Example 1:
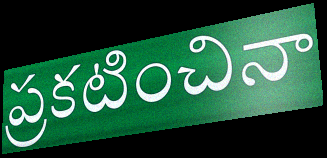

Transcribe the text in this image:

ప్రకటించినా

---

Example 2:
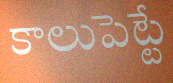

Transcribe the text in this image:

కాలుపెట్టే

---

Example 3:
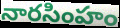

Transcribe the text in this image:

నారసింహం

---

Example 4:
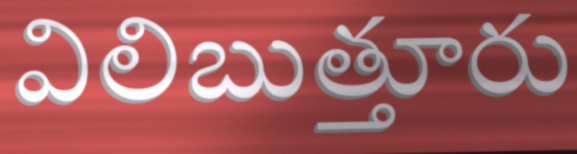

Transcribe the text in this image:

విలిబుత్తూరు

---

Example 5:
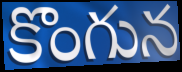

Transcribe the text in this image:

కొంగున